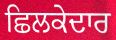
ਛਿਲਕੇਦਾਰ